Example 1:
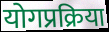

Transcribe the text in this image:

योगप्रक्रिया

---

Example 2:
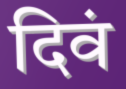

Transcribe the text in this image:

दिवं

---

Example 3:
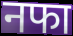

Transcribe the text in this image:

नफा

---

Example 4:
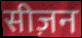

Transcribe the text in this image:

सीज़न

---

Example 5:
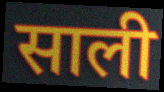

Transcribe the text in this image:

साली